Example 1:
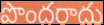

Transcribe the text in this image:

పొందరాదు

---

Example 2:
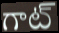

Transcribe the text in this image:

గాట్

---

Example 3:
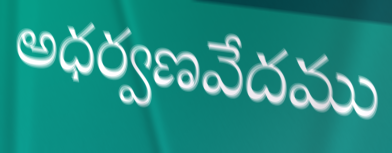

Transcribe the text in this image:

అధర్వణవేదము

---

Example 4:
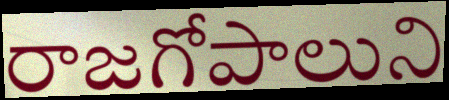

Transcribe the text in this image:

రాజగోపాలుని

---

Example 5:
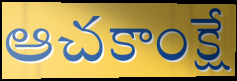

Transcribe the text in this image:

ఆచకాంక్షే